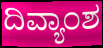
ದಿವ್ಯಾಂಶ